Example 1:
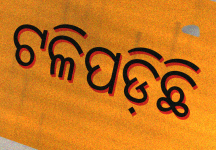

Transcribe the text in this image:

ଟଳିପଡ଼ିଛି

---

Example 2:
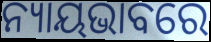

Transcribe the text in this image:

ନ୍ୟାୟଭାବରେ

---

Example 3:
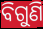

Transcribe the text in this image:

ବିଗୁଣି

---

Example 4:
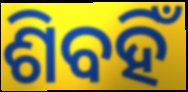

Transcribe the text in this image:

ଶିବହିଁ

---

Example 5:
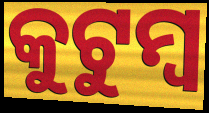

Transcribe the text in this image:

କୁଟୁମ୍ଵ